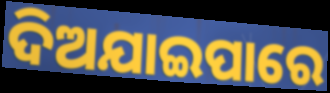
ଦିଅଯାଇପାରେ